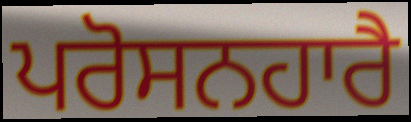
ਪਰੋਸਨਹਾਰੈ